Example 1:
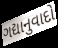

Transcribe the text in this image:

ગદ્યાનુવાદો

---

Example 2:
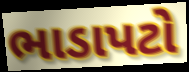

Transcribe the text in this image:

ભાડાપટો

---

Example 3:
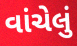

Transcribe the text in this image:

વાંચેલું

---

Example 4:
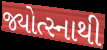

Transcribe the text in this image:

જ્યોત્સ્નાથી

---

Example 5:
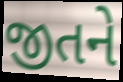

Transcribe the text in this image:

જીતને